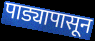
पाड्यापासून